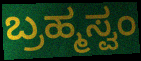
ಬ್ರಹ್ಮಸ್ವಂ